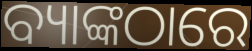
ବ୍ୟାଙ୍କଠାରେ